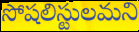
సోషలిస్టులమని